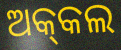
ଅକ୍‌କଲ